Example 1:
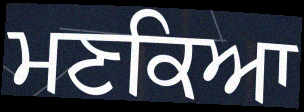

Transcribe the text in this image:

ਮਣਕਿਆ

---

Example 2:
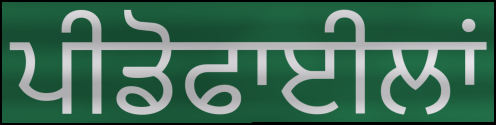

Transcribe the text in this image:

ਪੀਡੋਫਾਈਲਾਂ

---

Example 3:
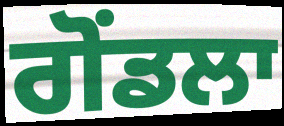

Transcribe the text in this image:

ਗੋਂਡਲਾ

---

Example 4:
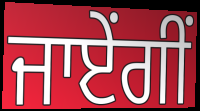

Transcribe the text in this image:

ਜਾਏਂਗੀਂ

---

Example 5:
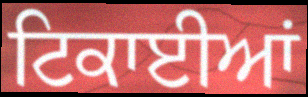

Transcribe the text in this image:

ਟਿਕਾਈਆਂ